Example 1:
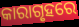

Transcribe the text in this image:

କାରାଗୃହରେ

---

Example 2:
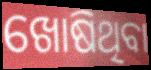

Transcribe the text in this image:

ଖୋଷିଥିବା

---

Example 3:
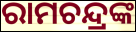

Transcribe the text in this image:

ରାମଚନ୍ଦ୍ରଙ୍କ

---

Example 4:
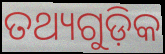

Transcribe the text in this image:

ତଥ୍ୟଗୁଡ଼ିକ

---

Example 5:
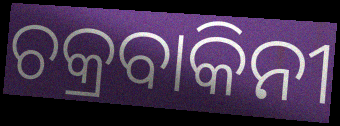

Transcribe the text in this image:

ଚକ୍ରବାକିନୀ